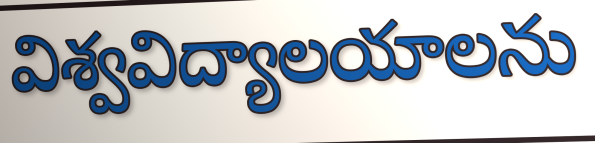
విశ్వవిద్యాలయాలను